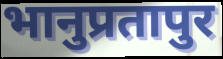
भानुप्रतापुर